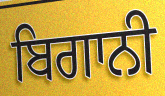
ਬਿਗਾਨੀ